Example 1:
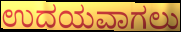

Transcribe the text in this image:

ಉದಯವಾಗಲು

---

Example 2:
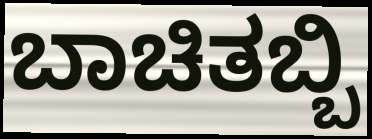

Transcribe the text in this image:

ಬಾಚಿತಬ್ಬಿ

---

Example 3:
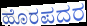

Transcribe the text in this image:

ಹೊರಪದರ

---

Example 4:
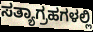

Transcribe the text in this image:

ಸತ್ಯಾಗ್ರಹಗಳಲ್ಲಿ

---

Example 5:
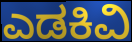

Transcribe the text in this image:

ಎಡಕಿವಿ